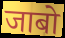
जाबो